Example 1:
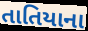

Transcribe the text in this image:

તાતિયાના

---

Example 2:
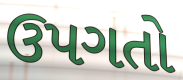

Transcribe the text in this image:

ઉપગતો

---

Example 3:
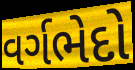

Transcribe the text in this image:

વર્ગભેદો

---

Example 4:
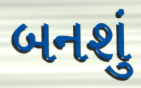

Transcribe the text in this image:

બનશું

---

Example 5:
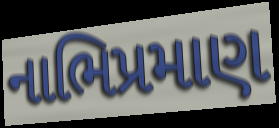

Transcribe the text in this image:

નાભિપ્રમાણ